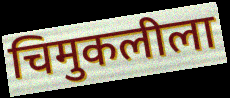
चिमुकलीला